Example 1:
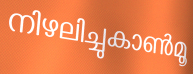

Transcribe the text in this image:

നിഴലിച്ചുകാൺമൂ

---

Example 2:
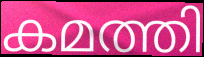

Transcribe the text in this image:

കമത്തി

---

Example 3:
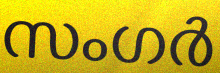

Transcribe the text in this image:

സംഗർ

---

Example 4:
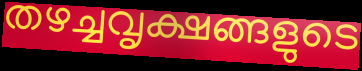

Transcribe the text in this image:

തഴച്ചവൃക്ഷങ്ങളുടെ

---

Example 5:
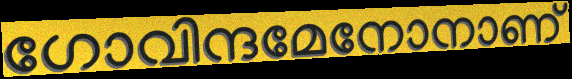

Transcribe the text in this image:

ഗോവിന്ദമേനോനാണ്